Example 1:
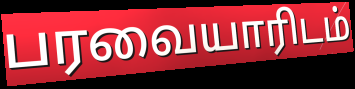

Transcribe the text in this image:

பரவையாரிடம்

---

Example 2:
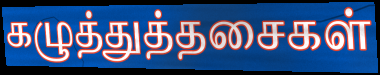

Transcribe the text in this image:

கழுத்துத்தசைகள்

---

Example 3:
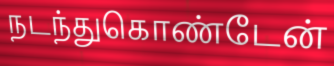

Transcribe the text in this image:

நடந்துகொண்டேன்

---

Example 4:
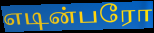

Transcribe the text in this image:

எடின்பரோ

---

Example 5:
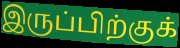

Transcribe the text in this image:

இருப்பிற்குக்